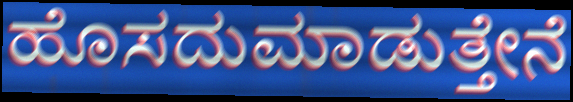
ಹೊಸದುಮಾಡುತ್ತೇನೆ